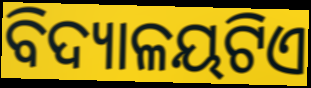
ବିଦ୍ୟାଳୟଟିଏ